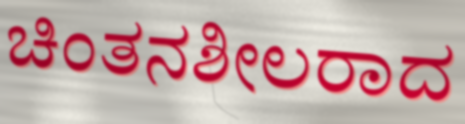
ಚಿಂತನಶೀಲರಾದ